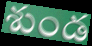
శుండ